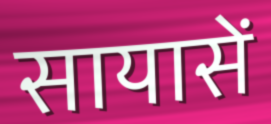
सायासें